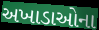
અખાડાઓના